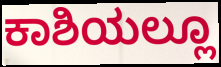
ಕಾಶಿಯಲ್ಲೂ